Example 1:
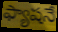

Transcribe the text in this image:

ఫ్యాషనే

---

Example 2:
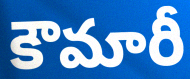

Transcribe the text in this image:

కౌమారీ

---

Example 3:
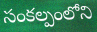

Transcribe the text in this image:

సంకల్పంలోని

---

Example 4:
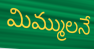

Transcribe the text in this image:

మిమ్ములనే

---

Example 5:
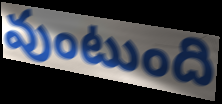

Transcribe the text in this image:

వుంటుంది